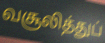
வசூலித்துப்